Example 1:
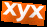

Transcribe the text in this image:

xyx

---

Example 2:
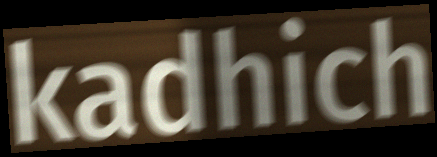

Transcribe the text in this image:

kadhich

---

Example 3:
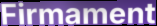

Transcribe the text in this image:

Firmament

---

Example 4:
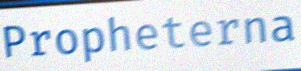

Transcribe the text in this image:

Propheterna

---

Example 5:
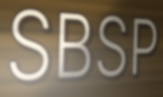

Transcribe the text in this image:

SBSP